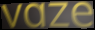
vaze